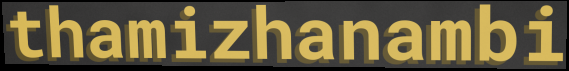
thamizhanambi